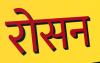
रोसन